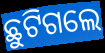
ଛୁଟିଗଲେ